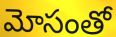
మోసంతో